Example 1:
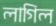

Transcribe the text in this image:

লাগিল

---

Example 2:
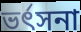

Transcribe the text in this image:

ভৰ্ৎসনা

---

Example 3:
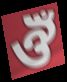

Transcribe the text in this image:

ঔঁ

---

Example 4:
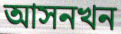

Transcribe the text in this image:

আসনখন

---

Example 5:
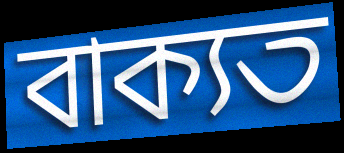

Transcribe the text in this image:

বাক্যত